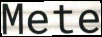
Mete